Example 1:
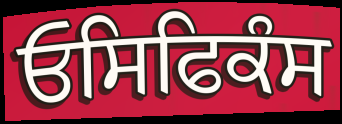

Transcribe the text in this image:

ਓਸਿਫਿਕੰਸ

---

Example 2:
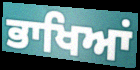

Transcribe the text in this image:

ਭਾਖਿਆਂ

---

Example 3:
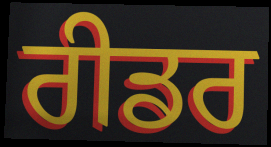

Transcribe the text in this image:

ਰੀਡਰ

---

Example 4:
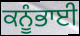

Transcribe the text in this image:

ਕਨੂੰਭਾਈ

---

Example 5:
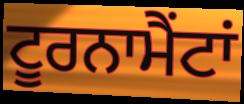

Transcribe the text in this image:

ਟੂਰਨਾਮੈਂਟਾਂ